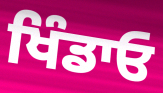
ਖਿੰਡਾਓ